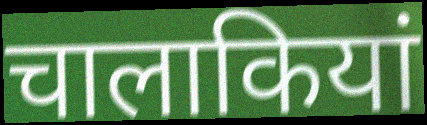
चालाकियां